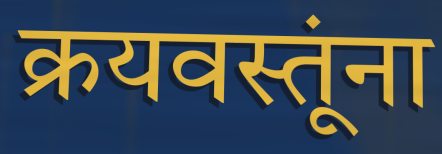
क्रयवस्तूंना